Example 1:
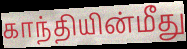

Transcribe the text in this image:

காந்தியின்மீது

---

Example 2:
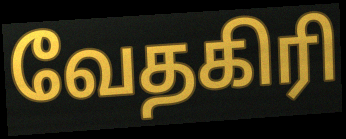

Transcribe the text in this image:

வேதகிரி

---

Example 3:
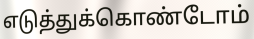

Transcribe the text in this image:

எடுத்துக்கொண்டோம்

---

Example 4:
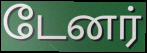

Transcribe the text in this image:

டேனர்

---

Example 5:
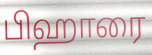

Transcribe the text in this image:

பிஹாரை